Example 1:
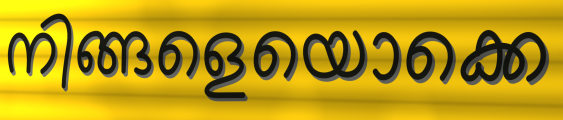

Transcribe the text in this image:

നിങ്ങളെയൊക്കെ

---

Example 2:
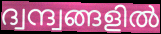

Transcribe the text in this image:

ദ്വന്ദ്വങ്ങളിൽ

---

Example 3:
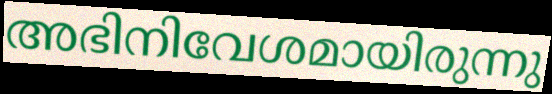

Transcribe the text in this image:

അഭിനിവേശമായിരുന്നു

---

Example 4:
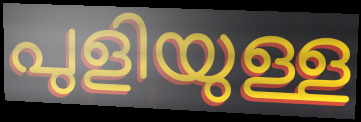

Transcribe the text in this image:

പുളിയുള്ള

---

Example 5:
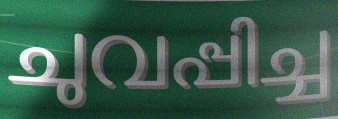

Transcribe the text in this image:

ചുവപ്പിച്ച